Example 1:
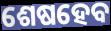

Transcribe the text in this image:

ଶେଷହେବ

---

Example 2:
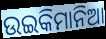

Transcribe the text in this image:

ଉଇକିମାନିଆ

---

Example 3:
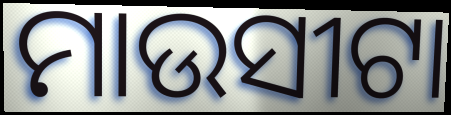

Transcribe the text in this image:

ମାଉସୀଟା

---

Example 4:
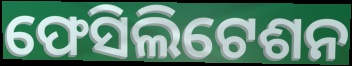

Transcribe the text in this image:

ଫେସିଲିଟେଶନ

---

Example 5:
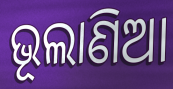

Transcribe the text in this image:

ଭୂଲାଣିଆ